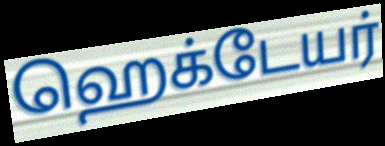
ஹெக்டேயர்